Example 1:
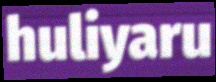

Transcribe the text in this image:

huliyaru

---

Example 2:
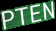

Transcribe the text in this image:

PTEN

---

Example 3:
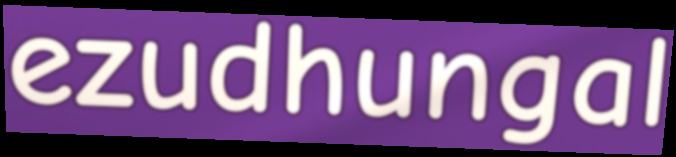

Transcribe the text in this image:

ezudhungal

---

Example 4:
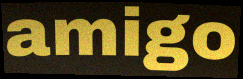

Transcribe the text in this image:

amigo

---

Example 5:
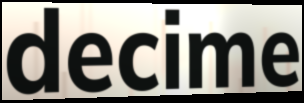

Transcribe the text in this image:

decime